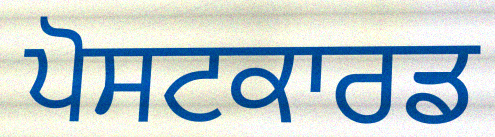
ਪੋਸਟਕਾਰਡ